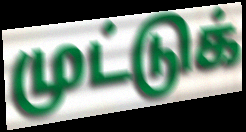
முட்டுக்